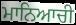
ਮਾਨਿਆਚੀ